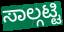
ಸಾಲ್ಗಟ್ಟಿ